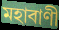
মহাবাণী